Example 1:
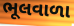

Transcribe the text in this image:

ભૂલવાળા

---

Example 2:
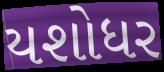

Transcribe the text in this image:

યશોધર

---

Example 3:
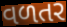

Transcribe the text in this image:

વળતર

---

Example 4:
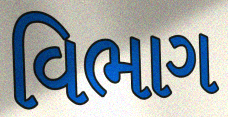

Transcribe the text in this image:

વિભાગ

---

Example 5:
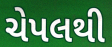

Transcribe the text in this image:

ચેપલથી